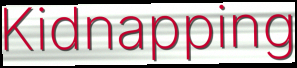
Kidnapping